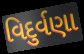
વિદુર્વણા